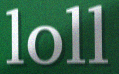
loll